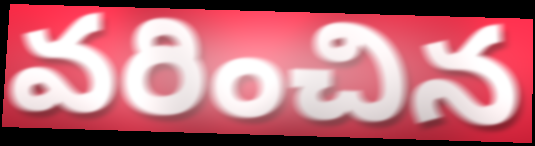
వరించిన